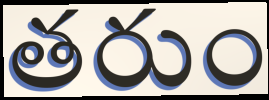
తరుం